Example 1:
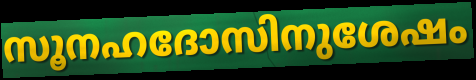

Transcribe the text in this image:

സൂനഹദോസിനുശേഷം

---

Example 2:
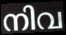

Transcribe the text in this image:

നിവ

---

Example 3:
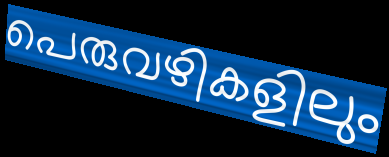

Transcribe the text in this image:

പെരുവഴികളിലും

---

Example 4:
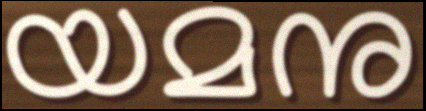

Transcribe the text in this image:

യമനു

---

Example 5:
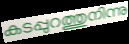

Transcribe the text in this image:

കടപ്പുറത്തുനിന്നു